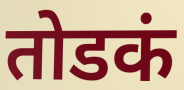
तोडकं